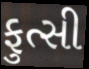
ફુત્સી